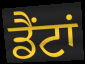
ਡੈਂਟਾਂ